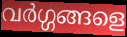
വർഗ്ഗങ്ങളെ